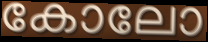
കോലോ